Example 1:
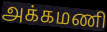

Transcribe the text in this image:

அக்கமணி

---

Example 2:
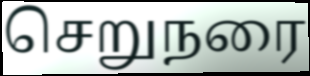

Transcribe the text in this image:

செறுநரை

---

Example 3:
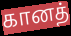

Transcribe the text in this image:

கானத்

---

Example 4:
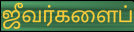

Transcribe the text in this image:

ஜீவர்களைப்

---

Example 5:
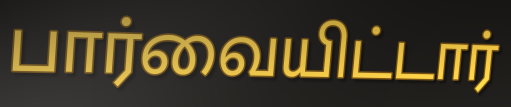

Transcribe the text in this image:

பார்வையிட்டார்